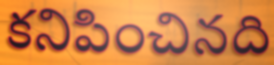
కనిపించినది